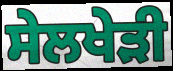
ਸੇਲਖੇੜੀ